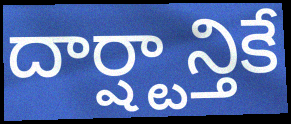
దార్ష్టాన్తికే